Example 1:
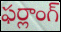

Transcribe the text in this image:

ఫర్లాంగ్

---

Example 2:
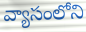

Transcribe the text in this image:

వ్యాసంలోని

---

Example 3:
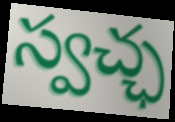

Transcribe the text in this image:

స్వచ్ఛ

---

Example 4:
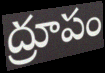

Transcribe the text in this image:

ద్రూపం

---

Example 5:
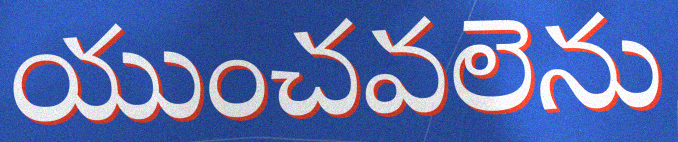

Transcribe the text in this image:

యుంచవలెను